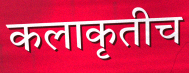
कलाकृतीच